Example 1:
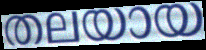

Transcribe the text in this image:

തലയായ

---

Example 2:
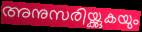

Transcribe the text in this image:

അനുസരിയ്ക്കുകയും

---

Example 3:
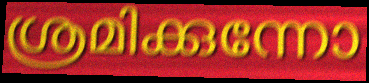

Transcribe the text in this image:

ശ്രമിക്കുന്നോ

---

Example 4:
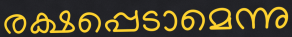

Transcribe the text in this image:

രക്ഷപ്പെടാമെന്നു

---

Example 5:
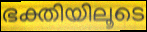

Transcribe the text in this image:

ഭക്തിയിലൂടെ